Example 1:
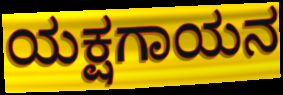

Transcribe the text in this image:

ಯಕ್ಷಗಾಯನ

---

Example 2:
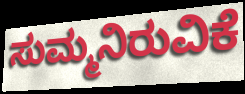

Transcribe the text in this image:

ಸುಮ್ಮನಿರುವಿಕೆ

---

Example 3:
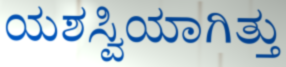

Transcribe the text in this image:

ಯಶಸ್ವಿಯಾಗಿತ್ತು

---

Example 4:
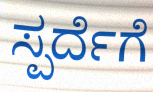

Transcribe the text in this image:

ಸ್ಪರ್ದೆಗೆ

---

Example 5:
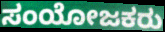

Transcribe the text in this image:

ಸಂಯೋಜಕರು